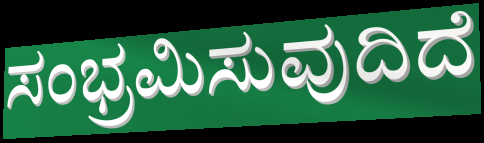
ಸಂಭ್ರಮಿಸುವುದಿದೆ